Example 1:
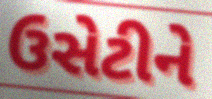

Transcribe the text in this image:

ઉસેટીને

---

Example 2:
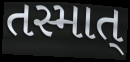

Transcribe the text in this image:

તસ્માત્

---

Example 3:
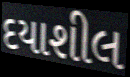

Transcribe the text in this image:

દયાશીલ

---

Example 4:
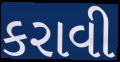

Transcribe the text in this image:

કરાવી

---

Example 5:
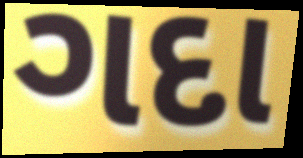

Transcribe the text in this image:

ગદા